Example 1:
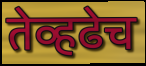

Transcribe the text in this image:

तेव्हढेच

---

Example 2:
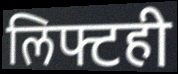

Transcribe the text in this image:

लिफ्टही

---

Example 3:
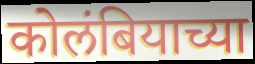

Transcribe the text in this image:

कोलंबियाच्या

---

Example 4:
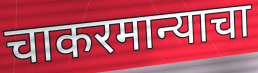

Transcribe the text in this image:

चाकरमान्याचा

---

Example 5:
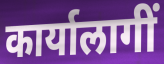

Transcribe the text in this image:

कार्यालागीं